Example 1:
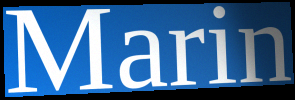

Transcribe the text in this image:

Marin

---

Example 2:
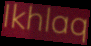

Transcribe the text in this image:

Ikhlaq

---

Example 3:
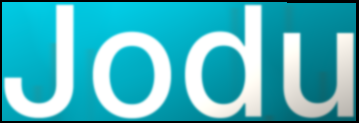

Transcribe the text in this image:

Jodu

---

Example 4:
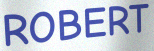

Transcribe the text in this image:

ROBERT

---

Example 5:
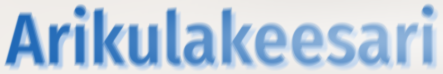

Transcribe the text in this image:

Arikulakeesari